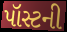
પૉસ્ટની